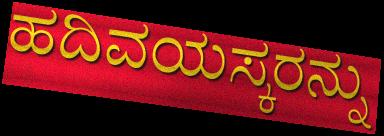
ಹದಿವಯಸ್ಕರನ್ನು